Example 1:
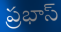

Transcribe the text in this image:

ప్రభాస్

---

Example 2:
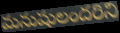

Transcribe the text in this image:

మనుషులందరిని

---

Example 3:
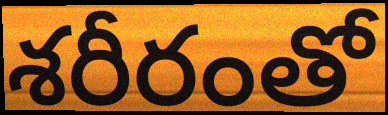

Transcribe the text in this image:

శరీరంతో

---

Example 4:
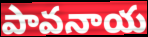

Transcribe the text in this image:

పావనాయ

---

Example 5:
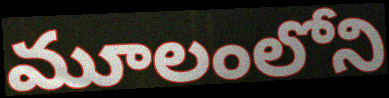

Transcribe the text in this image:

మూలంలోని